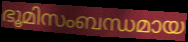
ഭൂമിസംബന്ധമായ